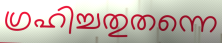
ഗ്രഹിച്ചതുതന്നെ